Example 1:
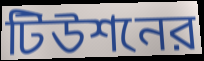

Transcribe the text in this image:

টিউশনের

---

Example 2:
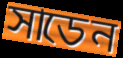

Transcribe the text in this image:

সাডেন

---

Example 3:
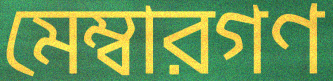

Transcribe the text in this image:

মেম্বারগণ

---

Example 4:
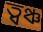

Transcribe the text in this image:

ত্বঞ্চ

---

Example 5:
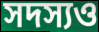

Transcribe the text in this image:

সদস্যও